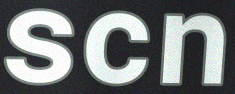
scn